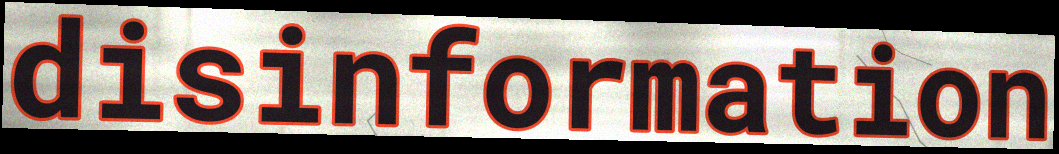
disinformation